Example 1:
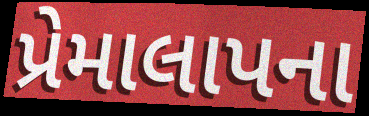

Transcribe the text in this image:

પ્રેમાલાપના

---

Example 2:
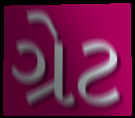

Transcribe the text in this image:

ગ્રેટ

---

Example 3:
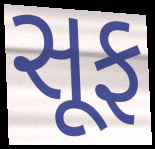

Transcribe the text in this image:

સૂફ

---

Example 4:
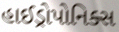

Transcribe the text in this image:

હાઈડ્રોપોનિક્સ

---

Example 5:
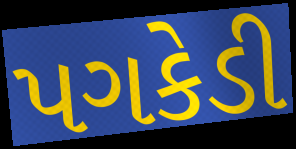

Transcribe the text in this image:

પગકેડી